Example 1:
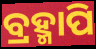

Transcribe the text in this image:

ବ୍ରହ୍ମାପି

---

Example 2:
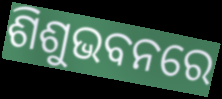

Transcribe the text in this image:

ଶିଶୁଭବନରେ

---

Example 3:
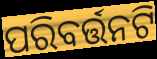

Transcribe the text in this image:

ପରିବର୍ତ୍ତନଟି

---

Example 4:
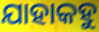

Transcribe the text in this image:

ଯାହାକହୁ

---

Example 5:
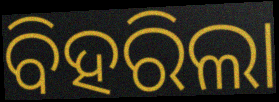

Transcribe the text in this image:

ବିହରିଲା